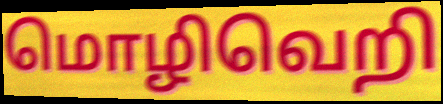
மொழிவெறி